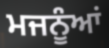
ਮਜਨੂੰਆਂ